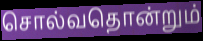
சொல்வதொன்றும்